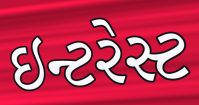
ઇન્ટરેસ્ટ